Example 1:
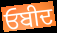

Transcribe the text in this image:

ਓਬੀਦ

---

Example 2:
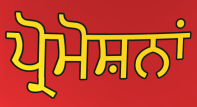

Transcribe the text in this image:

ਪ੍ਰੋਮੋਸ਼ਨਾਂ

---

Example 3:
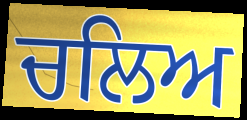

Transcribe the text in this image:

ਚਲਿਅ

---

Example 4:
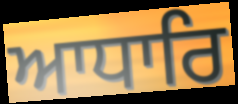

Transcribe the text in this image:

ਆਧਾਰਿ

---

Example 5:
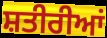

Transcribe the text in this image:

ਸ਼ਤੀਰੀਆਂ